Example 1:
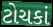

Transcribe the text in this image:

ટોચકાં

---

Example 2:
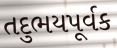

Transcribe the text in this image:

તદુભયપૂર્વક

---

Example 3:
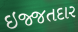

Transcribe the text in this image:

ઇજ્જતદાર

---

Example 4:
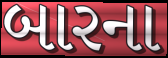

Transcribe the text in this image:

બારના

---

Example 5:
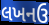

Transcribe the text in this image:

લખનઉ